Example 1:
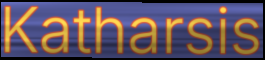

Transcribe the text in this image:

Katharsis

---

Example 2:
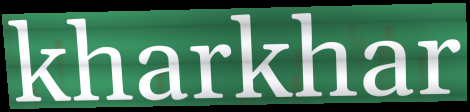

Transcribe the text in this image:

kharkhar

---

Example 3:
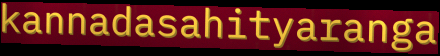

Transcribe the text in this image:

kannadasahityaranga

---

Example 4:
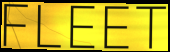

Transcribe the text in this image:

FLEET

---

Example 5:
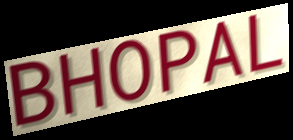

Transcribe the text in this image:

BHOPAL